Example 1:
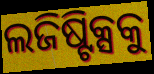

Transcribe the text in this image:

ଲଜିଷ୍ଟିକ୍ସକୁ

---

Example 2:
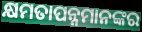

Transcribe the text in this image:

କ୍ଷମତାପନ୍ନମାନଙ୍କର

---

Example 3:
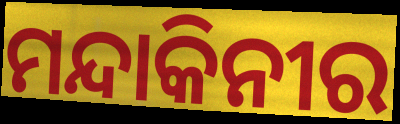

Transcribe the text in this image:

ମନ୍ଦାକିନୀର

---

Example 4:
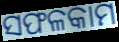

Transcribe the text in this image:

ସଫଳକାମ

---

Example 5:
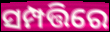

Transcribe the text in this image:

ସମ୍ପତ୍ତିରେ